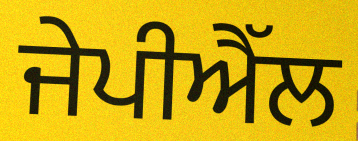
ਜੇਪੀਐੱਲ